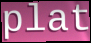
plat